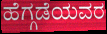
ಹೆಗ್ಗಡೆಯವರ